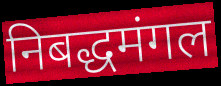
निबद्धमंगल